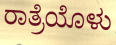
ರಾತ್ರೆಯೊಳು